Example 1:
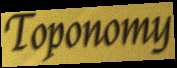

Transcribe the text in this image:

Toponomy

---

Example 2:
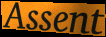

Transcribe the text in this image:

Assent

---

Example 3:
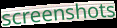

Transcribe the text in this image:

screenshots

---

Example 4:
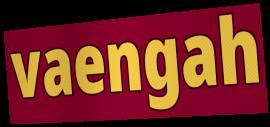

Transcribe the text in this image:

vaengah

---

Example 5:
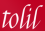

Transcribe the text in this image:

tolil